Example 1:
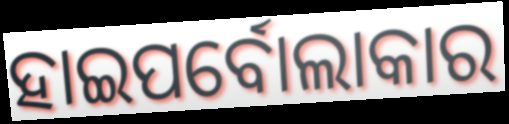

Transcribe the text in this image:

ହାଇପର୍ବୋଲାକାର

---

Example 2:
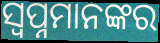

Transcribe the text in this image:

ସ୍ବପ୍ନମାନଙ୍କର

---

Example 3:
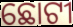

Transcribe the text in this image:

ଛୋଟୀ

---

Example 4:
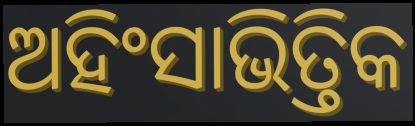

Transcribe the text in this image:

ଅହିଂସାଭିତ୍ତିକ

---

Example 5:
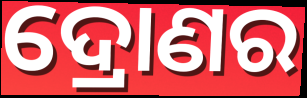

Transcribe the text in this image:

ଦ୍ରୋଣର